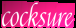
cocksure